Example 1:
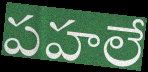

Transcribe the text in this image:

పహలే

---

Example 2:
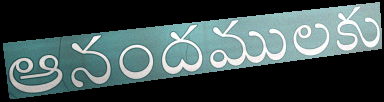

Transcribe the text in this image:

ఆనందములకు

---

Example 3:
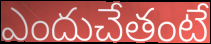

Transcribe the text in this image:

ఎందుచేతంటే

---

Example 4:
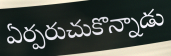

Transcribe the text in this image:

ఏర్పరుచుకొన్నాడు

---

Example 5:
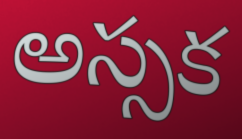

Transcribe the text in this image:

అస్సక